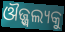
ଔଜ୍ଜ୍ଵଲ୍ୟକୁ